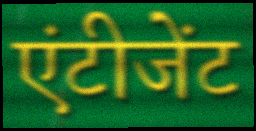
एंटीजेंट